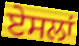
ਏਸਲਾਂ